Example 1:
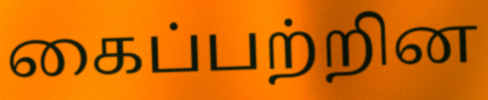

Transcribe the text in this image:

கைப்பற்றின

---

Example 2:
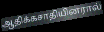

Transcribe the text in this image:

ஆதிக்கசாதியினரால்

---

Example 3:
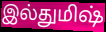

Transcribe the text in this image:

இல்துமிஷ்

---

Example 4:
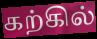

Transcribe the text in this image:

கற்கில்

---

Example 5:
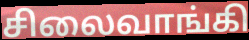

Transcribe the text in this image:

சிலைவாங்கி